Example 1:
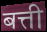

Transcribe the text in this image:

बत्ती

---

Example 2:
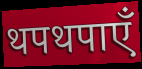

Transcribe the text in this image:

थपथपाएँ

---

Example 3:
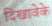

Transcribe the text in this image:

दिखावेके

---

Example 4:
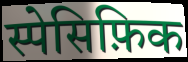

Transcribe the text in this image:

स्पेसिफ़िक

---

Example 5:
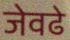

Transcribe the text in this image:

जेवढे